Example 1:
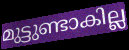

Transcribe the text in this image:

മുട്ടുണ്ടാകില്ല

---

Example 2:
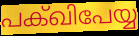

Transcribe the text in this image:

പക്ഖിപേയ്യ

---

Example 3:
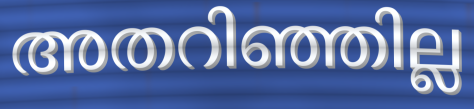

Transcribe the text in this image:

അതറിഞ്ഞില്ല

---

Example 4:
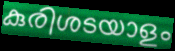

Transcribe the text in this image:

കുരിശടയാളം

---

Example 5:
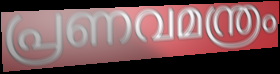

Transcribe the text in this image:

പ്രണവമന്ത്രം